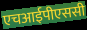
एचआईपीएससी